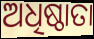
ଅଧିଷ୍ଠାତା